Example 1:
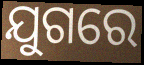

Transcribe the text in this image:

ଯୁଗରେ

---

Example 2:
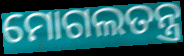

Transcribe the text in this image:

ମୋଗଲତନ୍ତ୍ର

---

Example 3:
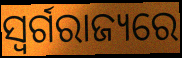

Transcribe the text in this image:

ସ୍ୱର୍ଗରାଜ୍ୟରେ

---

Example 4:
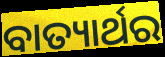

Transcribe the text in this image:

ବାତ୍ୟାର୍ଥର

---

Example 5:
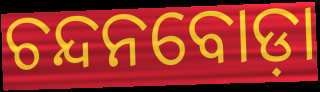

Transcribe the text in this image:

ଚନ୍ଦନବୋଡ଼ା